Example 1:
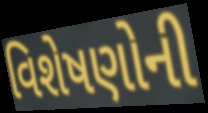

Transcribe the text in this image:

વિશેષણોની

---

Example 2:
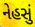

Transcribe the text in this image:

નેહસું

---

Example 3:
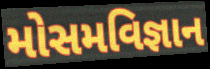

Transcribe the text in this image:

મોસમવિજ્ઞાન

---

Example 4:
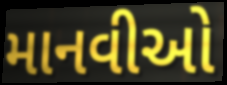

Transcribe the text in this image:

માનવીઓ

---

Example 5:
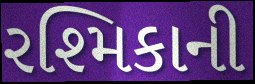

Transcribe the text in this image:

રશ્મિકાની